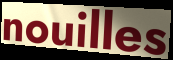
nouilles